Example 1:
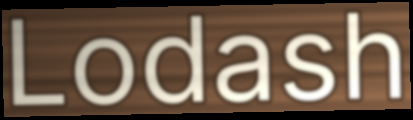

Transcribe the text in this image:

Lodash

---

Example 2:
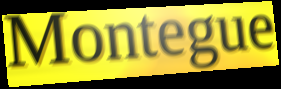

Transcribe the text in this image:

Montegue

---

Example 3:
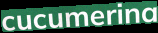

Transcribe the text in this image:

cucumerina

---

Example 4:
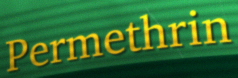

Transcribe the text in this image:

Permethrin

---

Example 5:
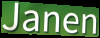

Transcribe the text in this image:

Janen